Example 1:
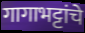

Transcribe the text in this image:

गागाभट्टांचे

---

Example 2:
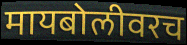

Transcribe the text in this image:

मायबोलीवरच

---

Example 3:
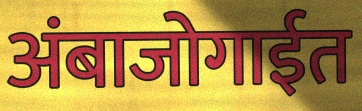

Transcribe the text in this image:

अंबाजोगाईत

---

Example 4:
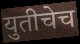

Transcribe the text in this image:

युतीचेच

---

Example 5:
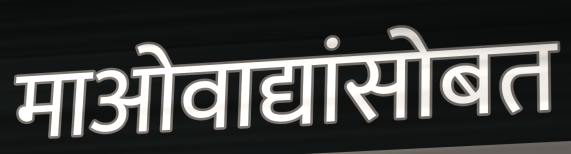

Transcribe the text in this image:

माओवाद्यांसोबत